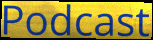
Podcast